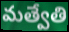
మత్వేతి